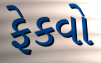
ફેકવો